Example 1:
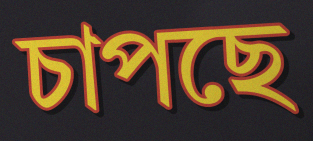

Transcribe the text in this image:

চাপছে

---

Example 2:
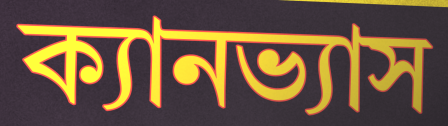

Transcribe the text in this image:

ক্যানভ্যাস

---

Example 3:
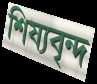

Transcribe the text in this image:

শিষ্যবৃন্দ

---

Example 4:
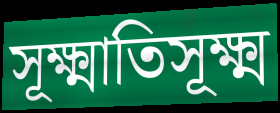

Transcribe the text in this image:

সূক্ষ্মাতিসূক্ষ্ম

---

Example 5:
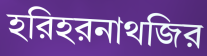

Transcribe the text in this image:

হরিহরনাথজির